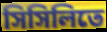
সিসিলিতে